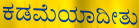
ಕಡಮೆಯಾದೀತು